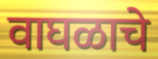
वाघळाचे